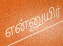
என்னுயிர்